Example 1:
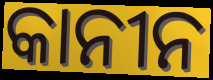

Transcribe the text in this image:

କାନୀନ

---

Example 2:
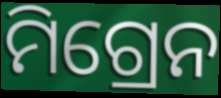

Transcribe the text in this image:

ମିଗ୍ରେନ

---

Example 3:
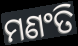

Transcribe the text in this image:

ମଣଂତି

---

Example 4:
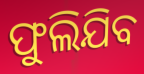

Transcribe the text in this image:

ଫୁଲିଯିବ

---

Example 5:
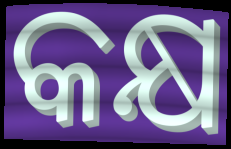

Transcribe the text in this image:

କକ୍ଷ